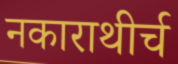
नकाराथीर्च